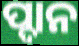
ପ୍ଦାନ